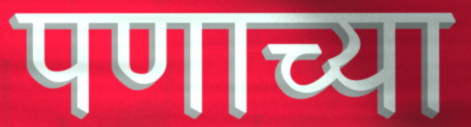
पणाच्या